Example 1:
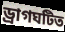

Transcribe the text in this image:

ড্রাগঘটিত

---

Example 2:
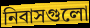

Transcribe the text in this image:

নিবাসগুলো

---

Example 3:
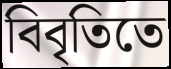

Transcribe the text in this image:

বিবৃতিতে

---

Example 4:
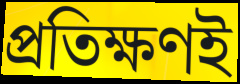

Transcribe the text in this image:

প্রতিক্ষণই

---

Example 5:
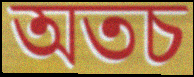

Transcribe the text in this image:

অতচ